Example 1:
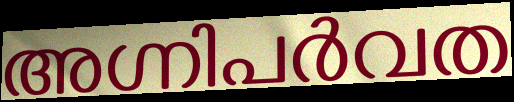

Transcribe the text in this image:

അഗ്നിപർവത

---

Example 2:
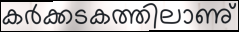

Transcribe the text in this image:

കർക്കടകത്തിലാണു്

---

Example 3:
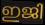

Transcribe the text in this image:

ഇജി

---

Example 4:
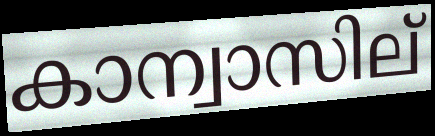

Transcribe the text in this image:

കാന്വാസില്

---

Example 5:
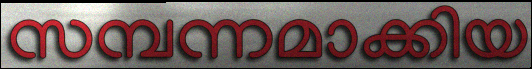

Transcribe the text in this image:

സമ്പന്നമാക്കിയ